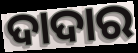
ଦାଦାର